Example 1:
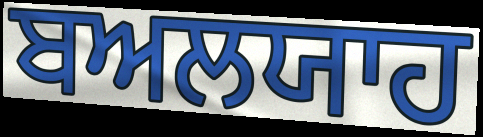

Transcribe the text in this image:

ਬਅਲਯਾਹ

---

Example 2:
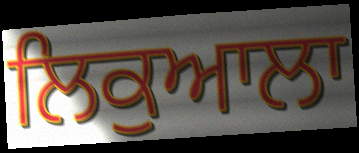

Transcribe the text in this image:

ਲਿਕੁਆਲਾ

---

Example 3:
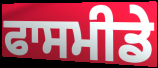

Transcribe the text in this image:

ਫਾਸਮੀਡੇ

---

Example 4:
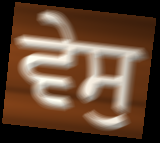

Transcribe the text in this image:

ਵੇਸੁ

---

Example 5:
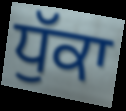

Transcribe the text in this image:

ਧੁੱਕਾ